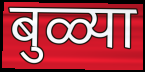
बुळ्या